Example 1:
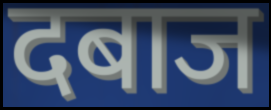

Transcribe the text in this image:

दबाज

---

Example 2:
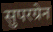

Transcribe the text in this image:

सुपरग्रेन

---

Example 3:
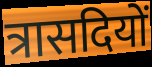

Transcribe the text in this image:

त्रासदियों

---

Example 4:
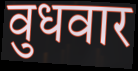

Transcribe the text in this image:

वुधवार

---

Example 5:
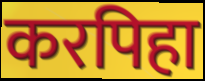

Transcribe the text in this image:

करपिहा